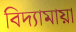
বিদ্যামায়া